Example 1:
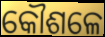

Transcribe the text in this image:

କୌଶଳେ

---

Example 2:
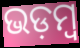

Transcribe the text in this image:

ଭଡ଼ମ୍ବ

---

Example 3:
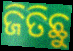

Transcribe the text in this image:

ଜିତିଛୁ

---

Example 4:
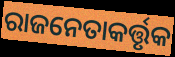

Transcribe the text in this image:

ରାଜନେତାକର୍ତ୍ତୃକ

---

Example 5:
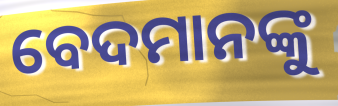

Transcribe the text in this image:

ବେଦମାନଙ୍କୁ